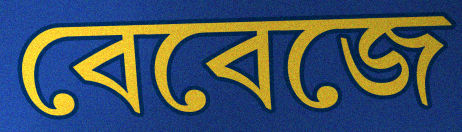
বেবেজে